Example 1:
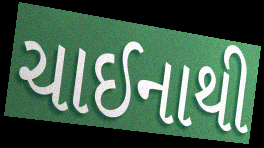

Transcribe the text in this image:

ચાઈનાથી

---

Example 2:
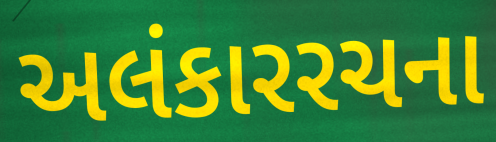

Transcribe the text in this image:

અલંકારરચના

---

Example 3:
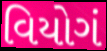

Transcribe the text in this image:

વિયોગં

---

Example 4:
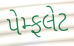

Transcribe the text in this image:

પેમ્ફલેટ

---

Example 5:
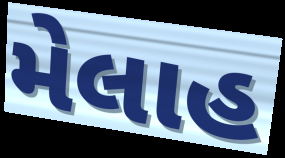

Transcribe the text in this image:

મેલાહ